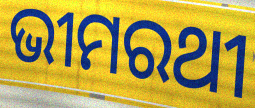
ଭୀମରଥୀ